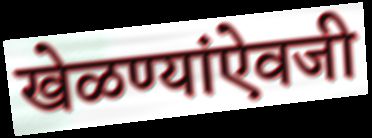
खेळण्यांऐवजी